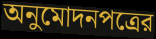
অনুমোদনপত্রের